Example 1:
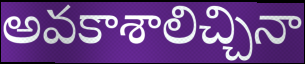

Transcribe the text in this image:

అవకాశాలిచ్చినా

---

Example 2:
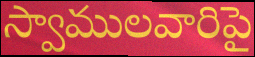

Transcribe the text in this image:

స్వాములవారిపై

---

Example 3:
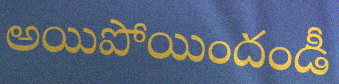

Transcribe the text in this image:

అయిపోయిందండీ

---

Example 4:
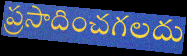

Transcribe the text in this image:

ప్రసాదించగలదు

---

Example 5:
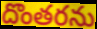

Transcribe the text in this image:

దొంతరను